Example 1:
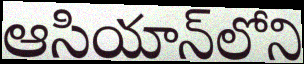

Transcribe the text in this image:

ఆసియాన్‌లోని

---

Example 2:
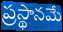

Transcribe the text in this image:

ప్రస్థానమే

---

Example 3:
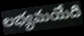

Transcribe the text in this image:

లభ్యమయేది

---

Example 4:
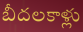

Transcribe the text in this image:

బీదలకాళ్లు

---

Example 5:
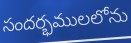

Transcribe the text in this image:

సందర్భములలోను